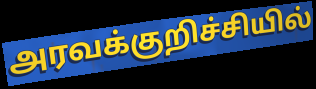
அரவக்குறிச்சியில்